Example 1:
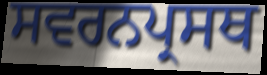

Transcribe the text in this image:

ਸਵਰਨਪ੍ਰਸਥ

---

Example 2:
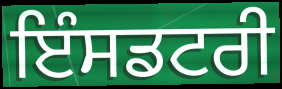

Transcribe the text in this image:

ਇੰਸਡਟਰੀ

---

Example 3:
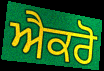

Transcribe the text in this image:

ਐਕਰੋ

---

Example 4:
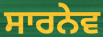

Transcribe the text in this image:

ਸਾਰਨੇਵ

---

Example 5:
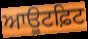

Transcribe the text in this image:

ਆਊਟਫ਼ਿਟ